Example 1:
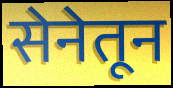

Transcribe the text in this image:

सेनेतून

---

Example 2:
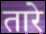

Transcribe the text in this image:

तारे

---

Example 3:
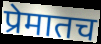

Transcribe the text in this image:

प्रेमातच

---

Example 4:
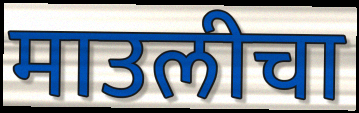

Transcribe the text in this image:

माउलीचा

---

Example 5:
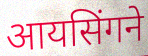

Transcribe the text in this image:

आयसिंगने